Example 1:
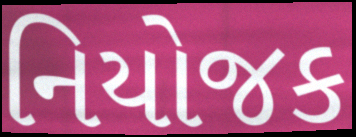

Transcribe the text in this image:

નિયોજક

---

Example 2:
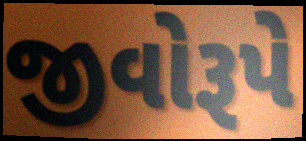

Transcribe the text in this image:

જીવોરૂપે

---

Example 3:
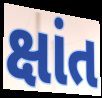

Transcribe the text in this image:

ક્ષાંત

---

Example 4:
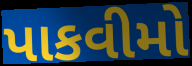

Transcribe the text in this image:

પાકવીમો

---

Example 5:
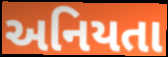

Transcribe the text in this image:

અનિયતા